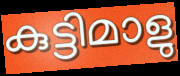
കുട്ടിമാളു